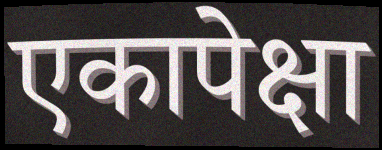
एकापेक्षा